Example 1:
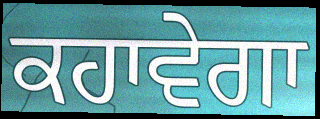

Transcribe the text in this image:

ਕਹਾਵੇਗਾ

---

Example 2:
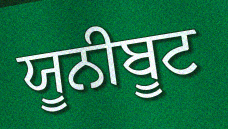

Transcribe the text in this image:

ਯੂਨੀਬੂਟ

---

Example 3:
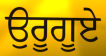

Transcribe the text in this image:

ਉਰੂਗੂਏ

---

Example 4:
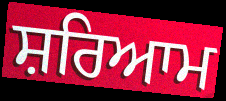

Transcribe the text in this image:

ਸ਼ਰਿਆਮ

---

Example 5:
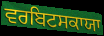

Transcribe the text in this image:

ਵਰਬਿਟਸਕਾਯਾ